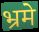
भ्रमे